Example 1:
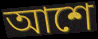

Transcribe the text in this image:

আশে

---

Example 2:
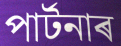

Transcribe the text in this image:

পাৰ্টনাৰ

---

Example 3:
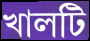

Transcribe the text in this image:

খালটি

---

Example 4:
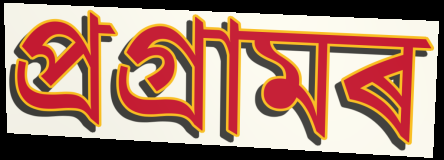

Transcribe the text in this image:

প্ৰগ্ৰামৰ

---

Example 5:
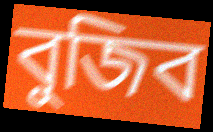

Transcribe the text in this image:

বুজিব